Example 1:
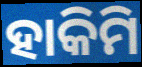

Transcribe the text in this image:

ହାକିମି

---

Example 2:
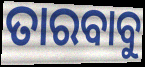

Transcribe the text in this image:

ତାରବାବୁ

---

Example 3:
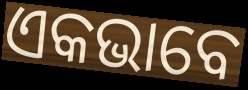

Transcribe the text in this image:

ଏକଭାବେ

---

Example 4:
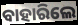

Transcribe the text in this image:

ବାହାରିଲେ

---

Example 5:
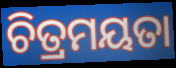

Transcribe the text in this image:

ଚିତ୍ରମୟତା